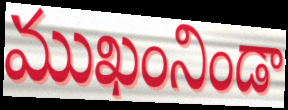
ముఖంనిండా